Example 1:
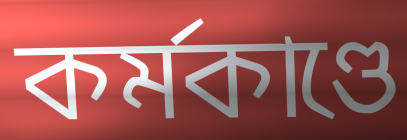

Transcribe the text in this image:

কর্মকাণ্ডে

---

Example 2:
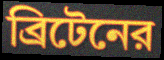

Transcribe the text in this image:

ব্রিটেনের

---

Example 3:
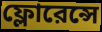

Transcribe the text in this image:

ফ্লোরেন্সে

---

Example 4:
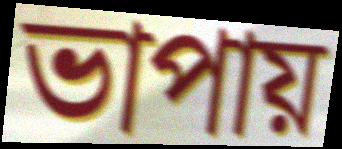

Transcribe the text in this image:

ভাপায়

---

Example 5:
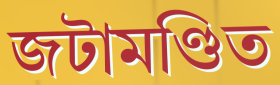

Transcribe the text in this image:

জটামণ্ডিত